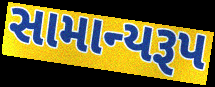
સામાન્યરૂપ